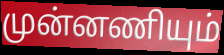
முன்னணியும்